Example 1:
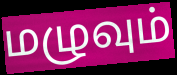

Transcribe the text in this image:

மழுவும்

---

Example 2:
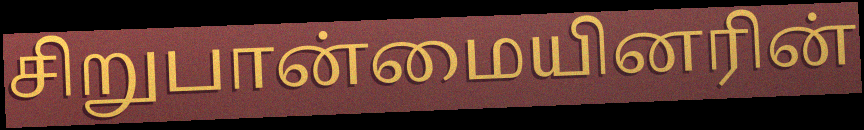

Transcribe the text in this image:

சிறுபான்மையினரின்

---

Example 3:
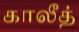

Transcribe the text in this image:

காலீத்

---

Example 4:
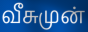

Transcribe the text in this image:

வீசுமுன்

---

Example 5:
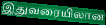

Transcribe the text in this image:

இதுவரையிலான